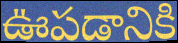
ఊపడానికి